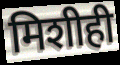
मिशीही